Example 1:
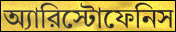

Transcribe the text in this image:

অ্যারিস্টোফেনিস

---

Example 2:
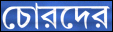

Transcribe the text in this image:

চোরদের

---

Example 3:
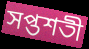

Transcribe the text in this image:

সপ্তশতী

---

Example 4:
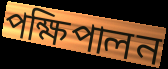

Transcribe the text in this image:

পক্ষিপালন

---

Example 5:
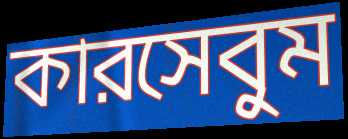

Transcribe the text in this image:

কারসেবুম